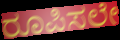
ರೂಪಿಸಲೇ